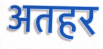
अतहर